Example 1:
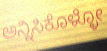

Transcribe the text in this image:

ಅನ್ನಿಸಿಕೊಳ್ಳೋ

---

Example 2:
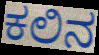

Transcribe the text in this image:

ಕಲಿನ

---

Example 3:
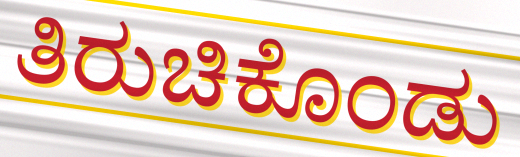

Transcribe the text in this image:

ತಿರುಚಿಕೊಂಡು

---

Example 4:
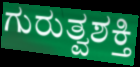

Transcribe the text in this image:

ಗುರುತ್ವಶಕ್ತಿ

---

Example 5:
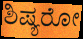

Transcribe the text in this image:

ಶಿಷ್ಯರೋ